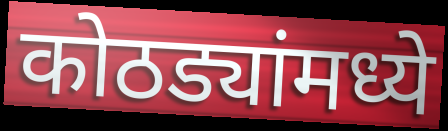
कोठड्यांमध्ये